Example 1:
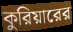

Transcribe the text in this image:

কুরিয়ারের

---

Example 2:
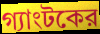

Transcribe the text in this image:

গ্যাংটকের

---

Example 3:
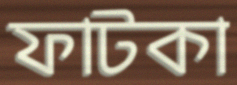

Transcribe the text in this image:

ফাটকা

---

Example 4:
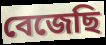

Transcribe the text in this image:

বেজেছি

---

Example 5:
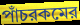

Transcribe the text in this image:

পাঁচরকমের